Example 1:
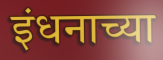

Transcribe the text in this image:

इंधनाच्या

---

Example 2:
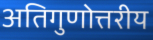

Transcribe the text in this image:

अतिगुणोत्तरीय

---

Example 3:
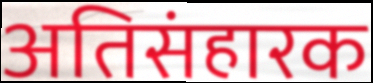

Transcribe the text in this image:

अतिसंहारक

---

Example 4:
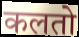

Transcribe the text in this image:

कलतो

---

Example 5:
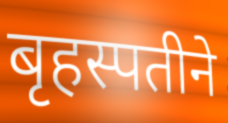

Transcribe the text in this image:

बृहस्पतीने